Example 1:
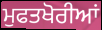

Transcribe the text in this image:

ਮੁਫਤਖੋਰੀਆਂ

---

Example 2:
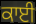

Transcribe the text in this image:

ਕਾਈ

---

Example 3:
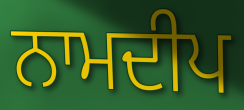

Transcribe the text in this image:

ਨਾਮਦੀਪ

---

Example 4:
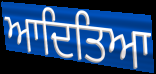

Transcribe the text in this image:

ਆਦਿਤਿਆ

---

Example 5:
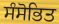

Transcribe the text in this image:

ਸੰਸੋਭਿਤ